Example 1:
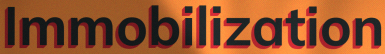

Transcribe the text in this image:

Immobilization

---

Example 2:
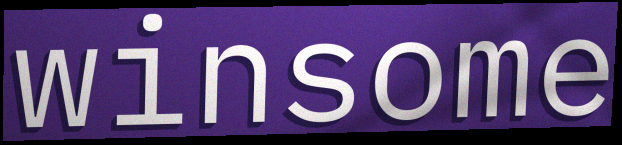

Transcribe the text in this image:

winsome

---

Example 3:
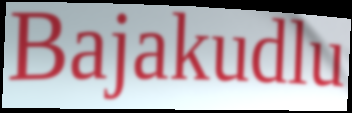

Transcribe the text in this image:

Bajakudlu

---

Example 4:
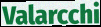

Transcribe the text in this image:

Valarcchi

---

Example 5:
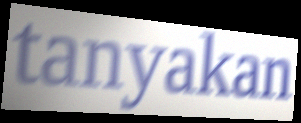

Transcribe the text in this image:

tanyakan